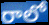
రాలో